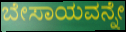
ಬೇಸಾಯವನ್ನೇ